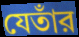
যেতাঁর